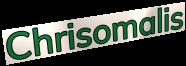
Chrisomalis